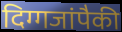
दिग्गजांपैकी